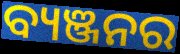
ବ୍ୟଞ୍ଜନର